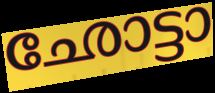
ഛോട്ടാ